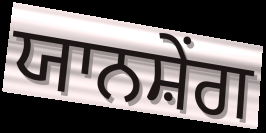
ਯਾਨਸ਼ੇਂਗ